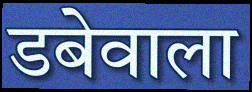
डबेवाला